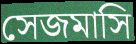
সেজমাসি